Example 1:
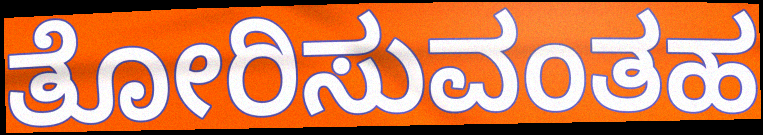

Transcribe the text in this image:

ತೋರಿಸುವಂತಹ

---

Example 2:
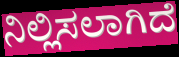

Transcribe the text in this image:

ನಿಲ್ಲಿಸಲಾಗಿದೆ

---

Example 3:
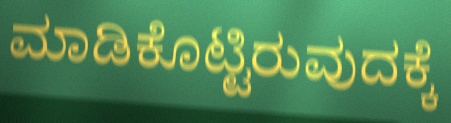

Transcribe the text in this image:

ಮಾಡಿಕೊಟ್ಟಿರುವುದಕ್ಕೆ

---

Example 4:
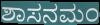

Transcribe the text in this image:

ಶಾಸನಮಂ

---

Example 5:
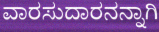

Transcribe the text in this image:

ವಾರಸುದಾರನನ್ನಾಗಿ